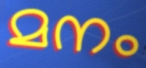
മനം